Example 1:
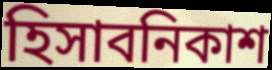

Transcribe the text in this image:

হিসাবনিকাশ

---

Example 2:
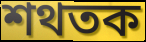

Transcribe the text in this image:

শথতক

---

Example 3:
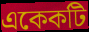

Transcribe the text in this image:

একেকটি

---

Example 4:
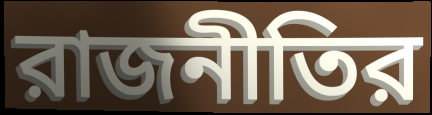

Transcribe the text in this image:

রাজনীতির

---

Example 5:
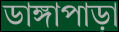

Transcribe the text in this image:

ডাঙ্গাপাড়া